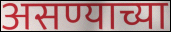
असण्याच्या